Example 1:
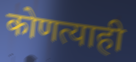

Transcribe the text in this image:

कोणत्याही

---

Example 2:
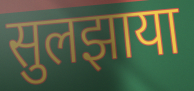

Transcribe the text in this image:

सुलझाया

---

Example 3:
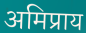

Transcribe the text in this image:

अमिप्राय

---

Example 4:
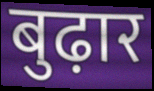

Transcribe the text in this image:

बुढ़ार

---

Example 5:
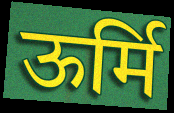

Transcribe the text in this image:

ऊर्मि